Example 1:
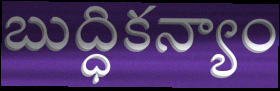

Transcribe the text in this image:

బుద్ధికన్యాం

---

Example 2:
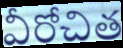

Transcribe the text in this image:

వీరోచిత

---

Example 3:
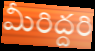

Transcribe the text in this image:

మీరిద్దరి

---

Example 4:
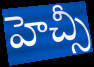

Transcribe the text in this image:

హెచ్సీ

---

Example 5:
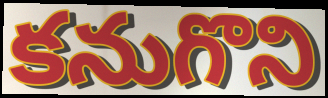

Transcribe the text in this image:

కనుగొని